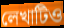
লেখাটিও